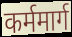
कर्ममार्ग